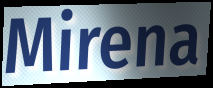
Mirena